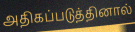
அதிகப்படுத்தினால்